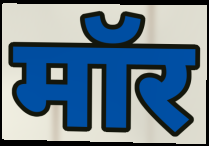
मॉर